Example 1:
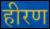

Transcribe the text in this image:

हीरण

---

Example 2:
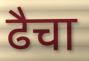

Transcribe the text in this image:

ढैचा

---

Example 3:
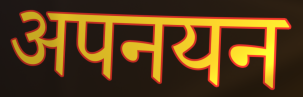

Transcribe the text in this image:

अपनयन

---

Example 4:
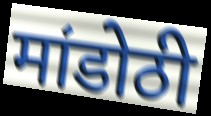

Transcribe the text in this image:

मांडोठी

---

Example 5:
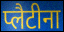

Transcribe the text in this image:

प्लैटीना